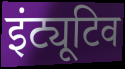
इंट्यूटिव